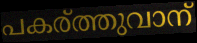
പകര്ത്തുവാന്